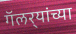
गॅलर्‍यांच्या